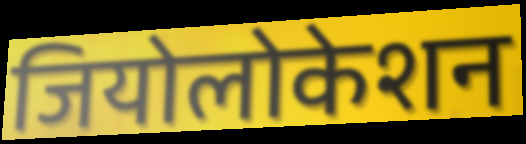
जियोलोकेशन